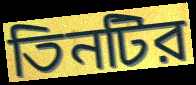
তিনটির